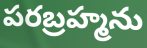
పరబ్రహ్మను